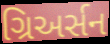
ગ્રિઅર્સન